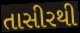
તાસીરથી